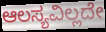
ಆಲಸ್ಯವಿಲ್ಲದೇ